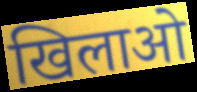
खिलाओ